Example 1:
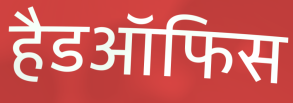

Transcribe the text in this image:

हैडऑफिस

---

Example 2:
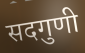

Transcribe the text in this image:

सदगुणी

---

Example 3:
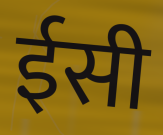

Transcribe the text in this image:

ईसी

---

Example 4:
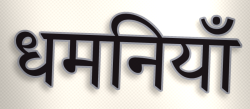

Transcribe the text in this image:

धमनियाँ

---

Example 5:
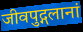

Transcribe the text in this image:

जीवपुद्गलानां